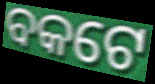
ବକଟେ